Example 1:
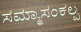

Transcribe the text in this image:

ಸಮ್ಮಾಸಂಕಲ್ಪ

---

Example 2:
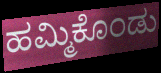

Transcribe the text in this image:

ಹಮ್ಮಿಕೊಂಡು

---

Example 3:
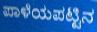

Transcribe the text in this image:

ಪಾಳೆಯಪಟ್ಟಿನ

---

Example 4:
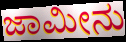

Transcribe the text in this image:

ಜಾಮೀನು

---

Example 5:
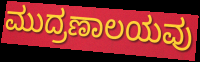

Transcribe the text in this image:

ಮುದ್ರಣಾಲಯವು